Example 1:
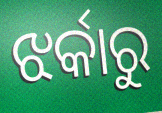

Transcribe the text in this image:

ଝର୍କାରୁ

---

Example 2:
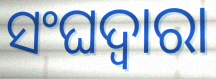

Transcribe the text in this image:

ସଂଘଦ୍ୱାରା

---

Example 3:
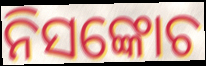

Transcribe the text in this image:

ନିସଙ୍କୋଚ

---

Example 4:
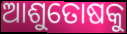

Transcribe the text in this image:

ଆଶୁତୋଷକୁ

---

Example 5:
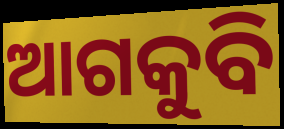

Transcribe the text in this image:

ଆଗକୁବି